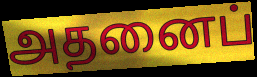
அதனைப்